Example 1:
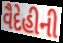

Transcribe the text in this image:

વૈદેહીની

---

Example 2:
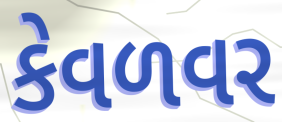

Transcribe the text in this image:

કેવળવર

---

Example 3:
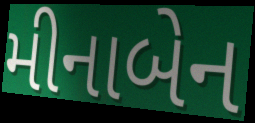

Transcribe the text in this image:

મીનાબેન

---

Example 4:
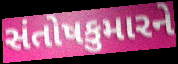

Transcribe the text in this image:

સંતોષકુમારને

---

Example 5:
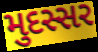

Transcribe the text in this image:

મુદસ્સર